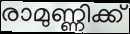
രാമുണ്ണിക്ക്